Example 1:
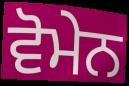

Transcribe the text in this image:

ਵੋਮੇਨ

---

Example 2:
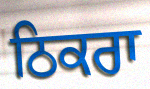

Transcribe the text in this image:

ਠਿਕਰਾ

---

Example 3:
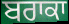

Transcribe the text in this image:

ਬਰਾਕਾ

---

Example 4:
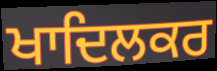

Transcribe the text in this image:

ਖਾਦਿਲਕਰ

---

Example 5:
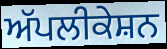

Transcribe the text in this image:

ਅੱਪਲੀਕੇਸ਼ਨ